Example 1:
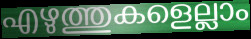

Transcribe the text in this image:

എഴുത്തുകളെല്ലാം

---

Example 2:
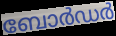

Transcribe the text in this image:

ബോർഡർ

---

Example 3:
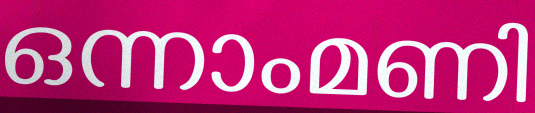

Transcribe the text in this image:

ഒന്നാംമണി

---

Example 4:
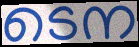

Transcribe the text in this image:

ടെന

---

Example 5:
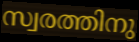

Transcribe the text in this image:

സ്വരത്തിനു